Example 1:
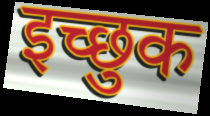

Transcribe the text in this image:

इच्‍छुक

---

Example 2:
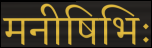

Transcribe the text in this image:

मनीषिभिः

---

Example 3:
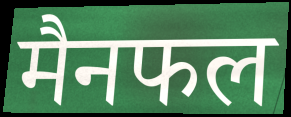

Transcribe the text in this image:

मैनफल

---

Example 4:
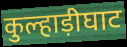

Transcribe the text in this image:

कुल्हाड़ीघाट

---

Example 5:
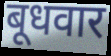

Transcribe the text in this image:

बूधवार